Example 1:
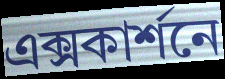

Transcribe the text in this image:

এক্সকার্শনে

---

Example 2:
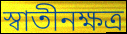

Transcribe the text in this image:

স্বাতীনক্ষত্র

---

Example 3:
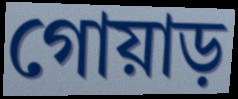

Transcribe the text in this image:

গোয়াড়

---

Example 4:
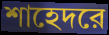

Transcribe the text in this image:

শাহেদরে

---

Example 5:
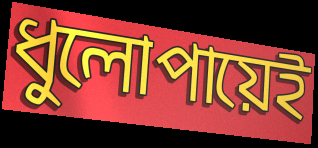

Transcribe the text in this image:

ধুলোপায়েই